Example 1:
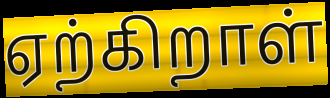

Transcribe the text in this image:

ஏற்கிறாள்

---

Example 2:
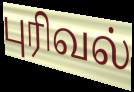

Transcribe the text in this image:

புரிவல்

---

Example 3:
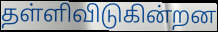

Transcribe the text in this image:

தள்ளிவிடுகின்றன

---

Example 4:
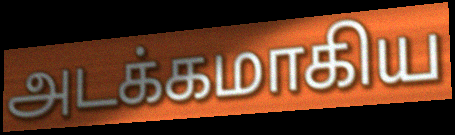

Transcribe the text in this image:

அடக்கமாகிய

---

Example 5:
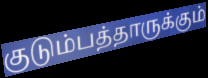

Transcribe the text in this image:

குடும்பத்தாருக்கும்